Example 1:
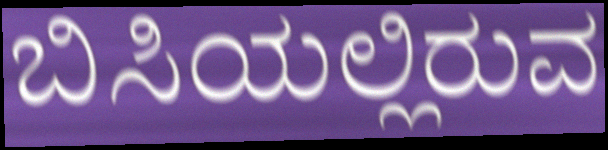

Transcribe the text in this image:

ಬಿಸಿಯಲ್ಲಿರುವ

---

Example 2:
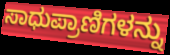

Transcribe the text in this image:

ಸಾಧುಪ್ರಾಣಿಗಳನ್ನು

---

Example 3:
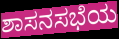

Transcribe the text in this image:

ಶಾಸನಸಭೆಯ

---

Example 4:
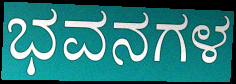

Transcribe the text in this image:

ಭವನಗಳ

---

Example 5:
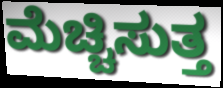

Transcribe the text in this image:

ಮೆಚ್ಚಿಸುತ್ತ